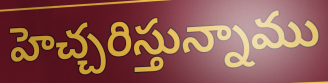
హెచ్చరిస్తున్నాము